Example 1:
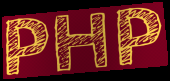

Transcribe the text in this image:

PHP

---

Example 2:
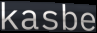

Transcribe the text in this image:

kasbe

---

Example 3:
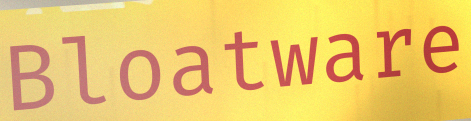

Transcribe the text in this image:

Bloatware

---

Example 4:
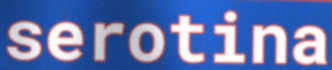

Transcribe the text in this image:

serotina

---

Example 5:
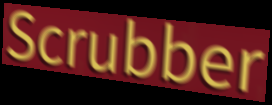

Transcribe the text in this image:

Scrubber